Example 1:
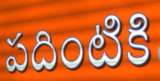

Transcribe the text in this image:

పదింటికి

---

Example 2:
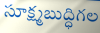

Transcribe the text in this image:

సూక్ష్మబుద్ధిగల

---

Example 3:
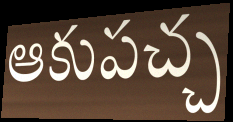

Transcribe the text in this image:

ఆకుపచ్చ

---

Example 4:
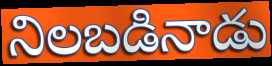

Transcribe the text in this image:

నిలబడినాడు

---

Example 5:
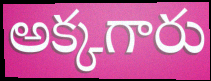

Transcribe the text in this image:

అక్కగారు